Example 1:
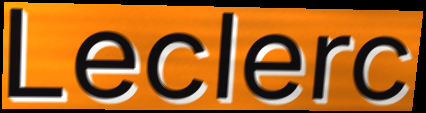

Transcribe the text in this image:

Leclerc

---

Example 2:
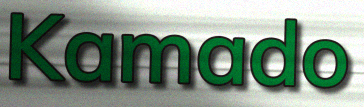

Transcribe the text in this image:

Kamado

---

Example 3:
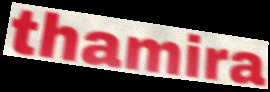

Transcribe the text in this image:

thamira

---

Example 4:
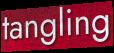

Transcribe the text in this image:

tangling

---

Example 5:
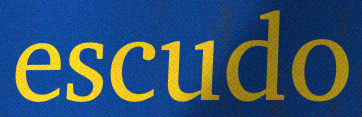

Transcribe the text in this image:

escudo